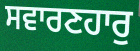
ਸਵਾਰਣਹਾਰੁ